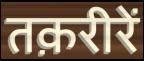
तक़रीरें